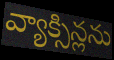
వ్యాక్సిన్లను